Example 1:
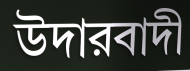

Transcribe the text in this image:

উদারবাদী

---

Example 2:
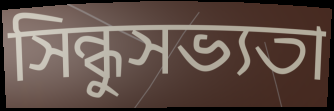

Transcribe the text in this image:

সিন্ধুসভ্যতা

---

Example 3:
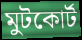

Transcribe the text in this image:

মুটকোর্ট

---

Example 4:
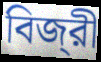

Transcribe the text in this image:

বিজ্‌রী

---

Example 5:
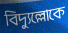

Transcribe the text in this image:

বিদ্যুল্লোকে